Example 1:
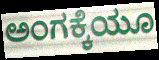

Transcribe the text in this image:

ಅಂಗಕ್ಕೆಯೂ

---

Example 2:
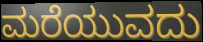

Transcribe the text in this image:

ಮರೆಯುವದು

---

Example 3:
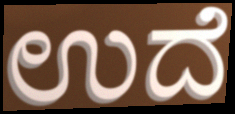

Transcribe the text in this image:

ಉದೆ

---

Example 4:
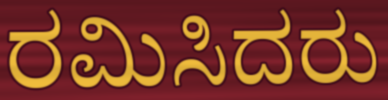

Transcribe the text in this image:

ರಮಿಸಿದರು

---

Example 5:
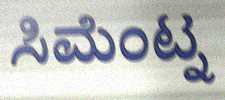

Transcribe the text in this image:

ಸಿಮೆಂಟ್ನ